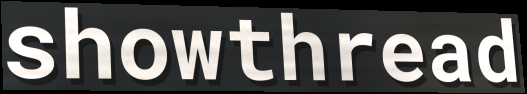
showthread